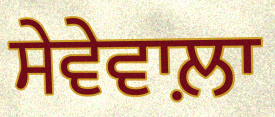
ਸੇਵੇਵਾਲ਼ਾ